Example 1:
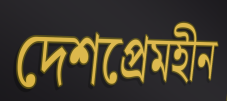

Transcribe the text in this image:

দেশপ্রেমহীন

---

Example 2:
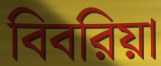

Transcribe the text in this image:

বিবরিয়া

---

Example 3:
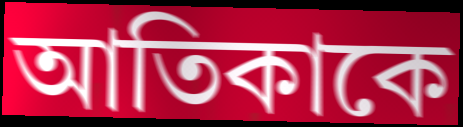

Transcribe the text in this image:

আতিকাকে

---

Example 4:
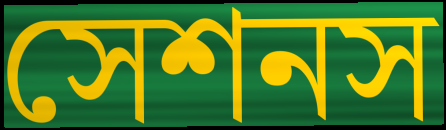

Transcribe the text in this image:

সেশনস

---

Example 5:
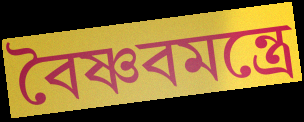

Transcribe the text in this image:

বৈষ্ণবমন্ত্রে